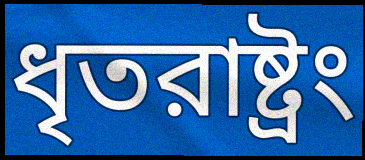
ধৃতরাষ্ট্রং